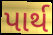
પાર્થ